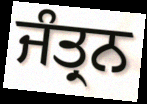
ਜੰਤ੍ਰਨ